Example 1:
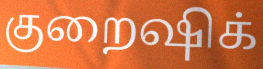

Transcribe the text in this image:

குறைஷிக்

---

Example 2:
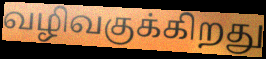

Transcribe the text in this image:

வழிவகுக்கிறது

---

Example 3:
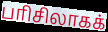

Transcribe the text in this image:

பரிசிலாகக்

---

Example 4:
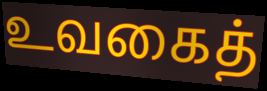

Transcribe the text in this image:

உவகைத்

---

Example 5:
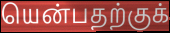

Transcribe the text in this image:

யென்பதற்குக்